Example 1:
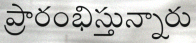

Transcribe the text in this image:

ప్రారంభిస్తున్నారు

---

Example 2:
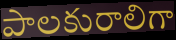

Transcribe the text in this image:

పాలకురాలిగా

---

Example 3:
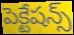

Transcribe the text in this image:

పెక్టేషన్స్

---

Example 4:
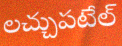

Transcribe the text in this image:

లచ్చుపటేల్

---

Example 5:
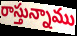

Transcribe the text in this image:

రాస్తున్నాము